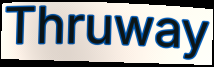
Thruway